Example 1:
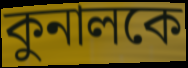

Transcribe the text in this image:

কুনালকে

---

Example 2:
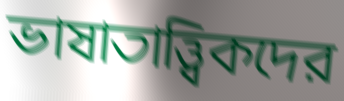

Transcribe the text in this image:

ভাষাতাত্ত্বিকদের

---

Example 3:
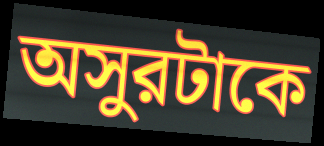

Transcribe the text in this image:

অসুরটাকে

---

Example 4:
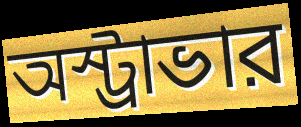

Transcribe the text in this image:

অস্ট্রাভার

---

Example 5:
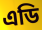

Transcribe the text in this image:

এডি